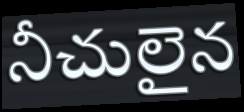
నీచులైన